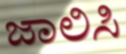
ಜಾಲಿಸಿ